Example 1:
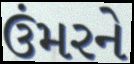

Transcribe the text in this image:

ઉંમરને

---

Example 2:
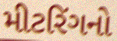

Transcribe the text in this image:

મીટરિંગનો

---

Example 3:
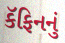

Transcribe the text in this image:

કૅફિનનું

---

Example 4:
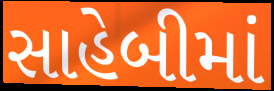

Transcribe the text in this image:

સાહેબીમાં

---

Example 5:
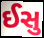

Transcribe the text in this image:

ઈસુ